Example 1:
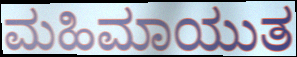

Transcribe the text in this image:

ಮಹಿಮಾಯುತ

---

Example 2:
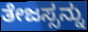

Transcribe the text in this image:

ತೇಜಸ್ಸನ್ನು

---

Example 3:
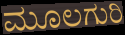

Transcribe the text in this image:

ಮೂಲಗುರಿ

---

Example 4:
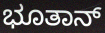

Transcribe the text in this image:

ಭೂತಾನ್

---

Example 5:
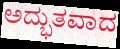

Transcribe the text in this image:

ಅದ್ಭುತವಾದ